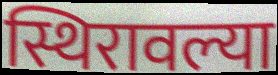
स्थिरावल्या